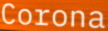
Corona